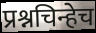
प्रश्नचिन्हेच